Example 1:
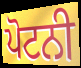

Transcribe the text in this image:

ਪੋਟਨੀ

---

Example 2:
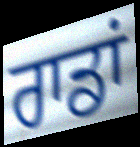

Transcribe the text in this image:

ਰਾਡਾਂ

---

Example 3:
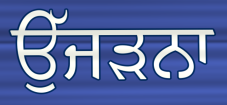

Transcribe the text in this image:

ਉੱਜੜਨਾ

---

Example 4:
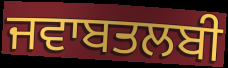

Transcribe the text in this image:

ਜਵਾਬਤਲਬੀ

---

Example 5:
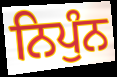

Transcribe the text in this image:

ਨਿਪੁੰਨ